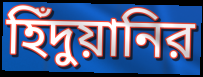
হিঁদুয়ানির